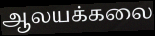
ஆலயக்கலை